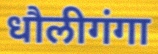
धौलीगंगा